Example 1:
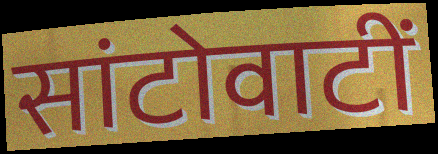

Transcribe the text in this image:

सांटोवाटीं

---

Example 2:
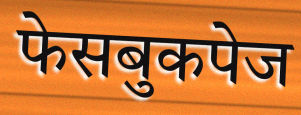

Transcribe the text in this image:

फेसबुकपेज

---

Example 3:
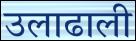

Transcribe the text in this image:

उलाढाली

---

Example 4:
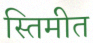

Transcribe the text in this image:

स्तिमीत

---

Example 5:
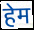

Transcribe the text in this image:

हेम